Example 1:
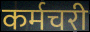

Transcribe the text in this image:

कर्मचरी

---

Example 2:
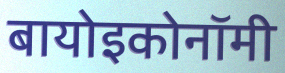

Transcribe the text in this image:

बायोइकोनॉमी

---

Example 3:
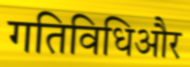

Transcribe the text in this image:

गतिविधिऔर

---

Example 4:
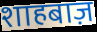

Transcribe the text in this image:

शाहबाज़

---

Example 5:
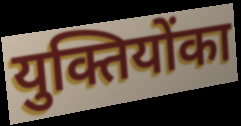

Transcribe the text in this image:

युक्तियोंका